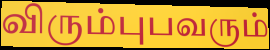
விரும்புபவரும்